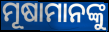
ମୂଷାମାନଙ୍କୁ